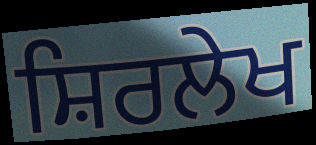
ਸ਼ਿਰਲੇਖ